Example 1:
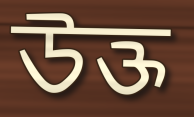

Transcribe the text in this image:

উক্ত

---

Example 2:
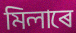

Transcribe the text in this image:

মিলাৰে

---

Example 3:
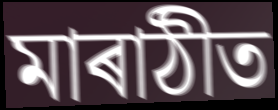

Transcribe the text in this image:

মাৰাঠীত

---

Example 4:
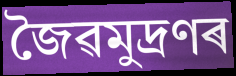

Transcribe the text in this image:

জৈৱমুদ্ৰণৰ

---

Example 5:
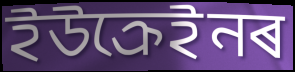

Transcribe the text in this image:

ইউক্ৰেইনৰ